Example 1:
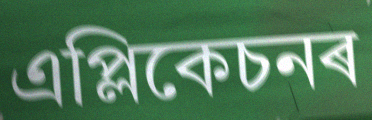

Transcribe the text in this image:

এপ্লিকেচনৰ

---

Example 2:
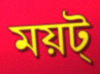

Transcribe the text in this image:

ময়ট্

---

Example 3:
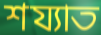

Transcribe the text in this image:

শয্যাত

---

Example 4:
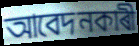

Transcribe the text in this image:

আবেদনকাৰী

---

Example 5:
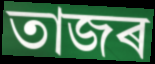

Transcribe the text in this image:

তাজৰ